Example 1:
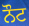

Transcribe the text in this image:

ਨੌਟ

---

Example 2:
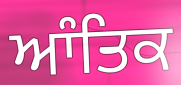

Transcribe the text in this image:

ਆੰਤਿਕ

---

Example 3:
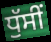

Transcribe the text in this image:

ਧੁੱਸੀਂ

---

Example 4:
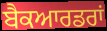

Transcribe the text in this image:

ਬੈਕਆਰਡਰਾਂ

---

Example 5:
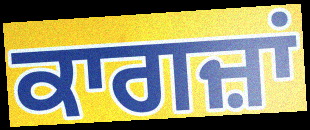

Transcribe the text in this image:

ਕਾਗਜ਼ਾਂ